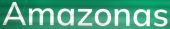
Amazonas